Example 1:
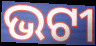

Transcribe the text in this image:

ଭଟୀ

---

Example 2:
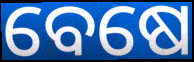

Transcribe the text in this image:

ବେଷେ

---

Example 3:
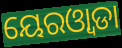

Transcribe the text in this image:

ୟେରଓ୍ୱାଡା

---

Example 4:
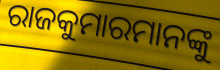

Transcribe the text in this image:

ରାଜକୁମାରମାନଙ୍କୁ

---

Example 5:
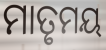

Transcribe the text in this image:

ମାତୃମୟ